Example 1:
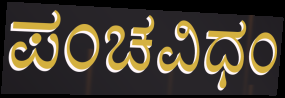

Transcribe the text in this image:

ಪಂಚವಿಧಂ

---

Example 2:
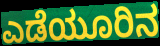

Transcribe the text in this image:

ಎಡೆಯೂರಿನ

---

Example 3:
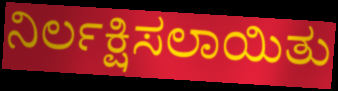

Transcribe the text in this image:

ನಿರ್ಲಕ್ಷಿಸಲಾಯಿತು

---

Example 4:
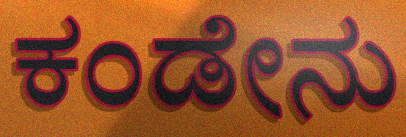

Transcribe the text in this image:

ಕಂಡೇನು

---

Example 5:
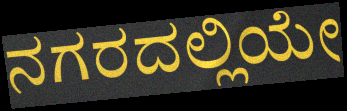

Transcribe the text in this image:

ನಗರದಲ್ಲಿಯೇ